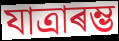
যাত্ৰাৰম্ভ